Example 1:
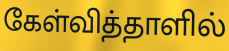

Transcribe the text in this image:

கேள்வித்தாளில்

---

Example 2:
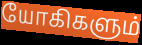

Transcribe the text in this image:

யோகிகளும்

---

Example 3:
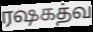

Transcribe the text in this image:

ரஷகத்வ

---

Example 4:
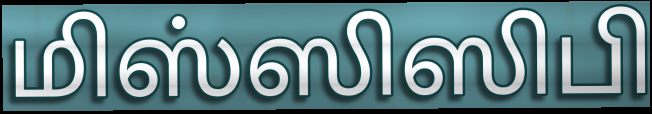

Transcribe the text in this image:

மிஸ்ஸிஸிபி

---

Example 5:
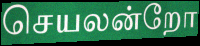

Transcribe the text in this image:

செயலன்றோ